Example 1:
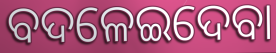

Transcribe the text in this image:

ବଦଳେଇଦେବା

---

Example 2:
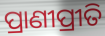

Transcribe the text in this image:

ପ୍ରାଣୀପ୍ରୀତି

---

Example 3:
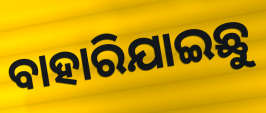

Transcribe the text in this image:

ବାହାରିଯାଇଛୁ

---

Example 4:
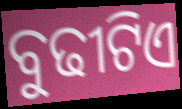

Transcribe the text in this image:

ବୁଢୀଟିଏ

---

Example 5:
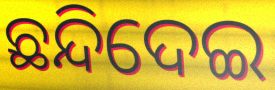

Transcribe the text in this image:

ଛନ୍ଦିଦେଇ